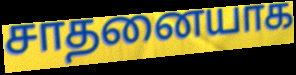
சாதனையாக